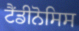
ਟੈਂਡੀਨੋਸਿਸ